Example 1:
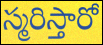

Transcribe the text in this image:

స్మరిస్తారో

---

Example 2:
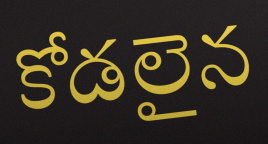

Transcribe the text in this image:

కోడలైన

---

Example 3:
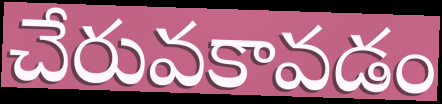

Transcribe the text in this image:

చేరువకావడం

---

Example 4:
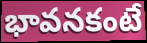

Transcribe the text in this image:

భావనకంటే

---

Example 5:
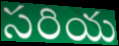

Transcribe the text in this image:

సరియ